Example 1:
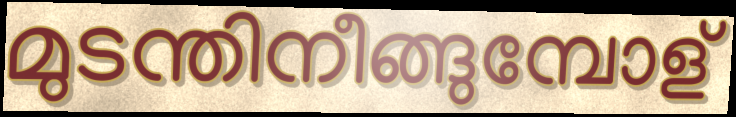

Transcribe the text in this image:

മുടന്തിനീങ്ങുമ്പോള്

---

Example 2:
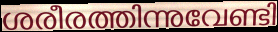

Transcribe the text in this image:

ശരീരത്തിന്നുവേണ്ടി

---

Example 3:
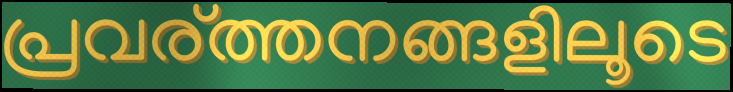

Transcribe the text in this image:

പ്രവര്ത്തനങ്ങളിലൂടെ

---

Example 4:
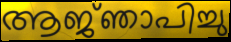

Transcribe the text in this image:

ആജ്‌ഞാപിച്ചു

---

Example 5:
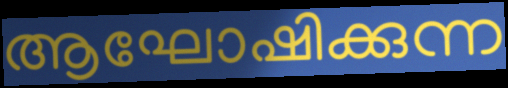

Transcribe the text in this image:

ആഘോഷിക്കുന്ന